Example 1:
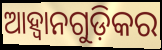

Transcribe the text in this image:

ଆହ୍ଵାନଗୁଡ଼ିକର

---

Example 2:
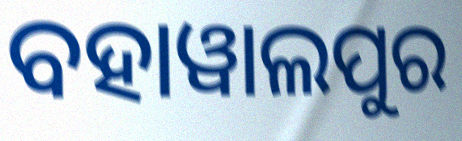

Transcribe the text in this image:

ବହାୱାଲପୁର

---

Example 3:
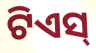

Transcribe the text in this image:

ଟିଏସ୍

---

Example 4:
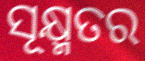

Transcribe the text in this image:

ସୂକ୍ଷ୍ମତର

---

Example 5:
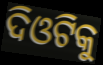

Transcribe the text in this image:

ଦିଓଟିକୁ